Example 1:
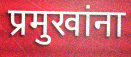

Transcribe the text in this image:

प्रमुखांना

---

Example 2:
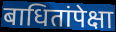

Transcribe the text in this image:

बाधितांपेक्षा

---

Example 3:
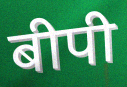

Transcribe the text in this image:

बीपी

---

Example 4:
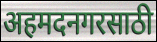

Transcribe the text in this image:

अहमदनगरसाठी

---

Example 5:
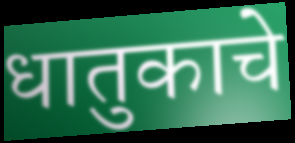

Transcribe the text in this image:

धातुकाचे